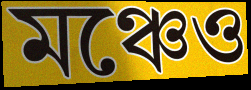
মঞ্চেও